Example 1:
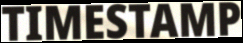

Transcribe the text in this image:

TIMESTAMP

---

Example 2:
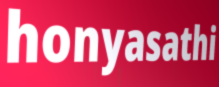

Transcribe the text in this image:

honyasathi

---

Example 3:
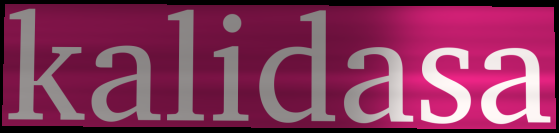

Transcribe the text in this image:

kalidasa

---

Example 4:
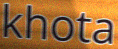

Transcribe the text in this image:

khota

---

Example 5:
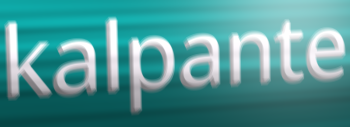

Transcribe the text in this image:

kalpante